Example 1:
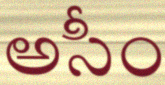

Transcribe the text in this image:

అసీం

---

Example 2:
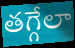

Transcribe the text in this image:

తగ్గేలా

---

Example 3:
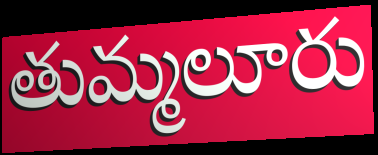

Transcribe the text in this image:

తుమ్మలూరు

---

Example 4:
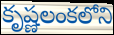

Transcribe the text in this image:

కృష్ణలంకలోని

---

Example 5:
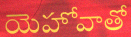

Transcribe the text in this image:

యెహోవాతో